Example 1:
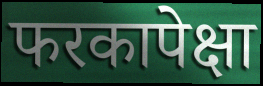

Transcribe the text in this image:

फरकापेक्षा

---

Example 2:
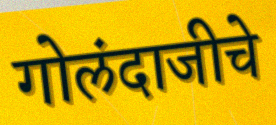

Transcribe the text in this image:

गोलंदाजीचे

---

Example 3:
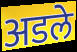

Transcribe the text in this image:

अडले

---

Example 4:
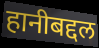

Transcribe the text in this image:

हानीबद्दल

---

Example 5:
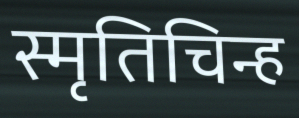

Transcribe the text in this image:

स्मृतिचिन्ह